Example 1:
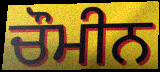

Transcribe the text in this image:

ਚੌਮੀਨ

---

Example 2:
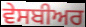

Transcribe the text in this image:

ਵੇਸਬੀਅਰ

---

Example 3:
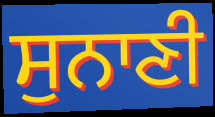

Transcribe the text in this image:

ਸੁਨਾਣੀ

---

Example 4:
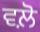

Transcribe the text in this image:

ਵਲ਼ੋ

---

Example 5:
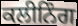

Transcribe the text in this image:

ਕਲੀਨਿੰਗ